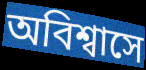
অবিশ্বাসে